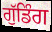
ਗੁੱਡਿੰਗ